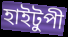
হাইটুপী